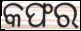
କଫର